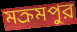
মক্রমপুর